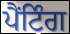
ਪੈਂਟਿੰਗ